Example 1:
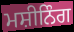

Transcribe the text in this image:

ਮਸ਼ੀਨਿੰਗ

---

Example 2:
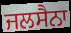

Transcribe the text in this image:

ਜਲਸੈਨਾ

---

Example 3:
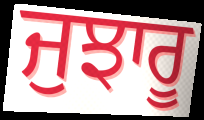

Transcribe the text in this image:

ਜੁਝਾਰੂ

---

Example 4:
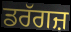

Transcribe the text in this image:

ਡਰੱਗਜ਼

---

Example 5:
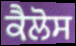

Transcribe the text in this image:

ਕੈਲੋਸ